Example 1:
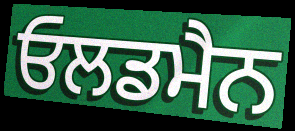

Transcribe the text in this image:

ਓਲਡਮੈਨ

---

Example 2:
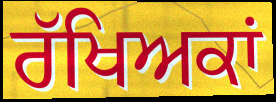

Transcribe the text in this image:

ਰੱਖਿਅਕਾਂ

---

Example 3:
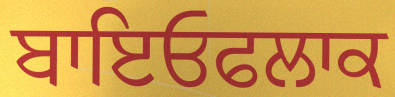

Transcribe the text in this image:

ਬਾਇਓਫਲਾਕ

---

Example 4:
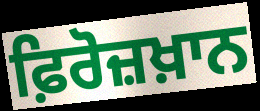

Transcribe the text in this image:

ਫ਼ਿਰੋਜ਼ਖ਼ਾਨ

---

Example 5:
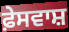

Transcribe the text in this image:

ਫ਼ੇਸਵਾਸ਼